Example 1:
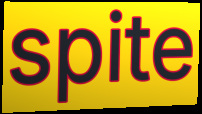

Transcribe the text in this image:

spite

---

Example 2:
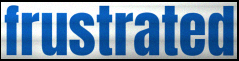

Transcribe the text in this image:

frustrated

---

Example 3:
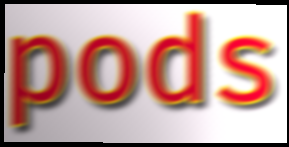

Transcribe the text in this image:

pods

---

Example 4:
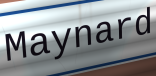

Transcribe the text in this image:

Maynard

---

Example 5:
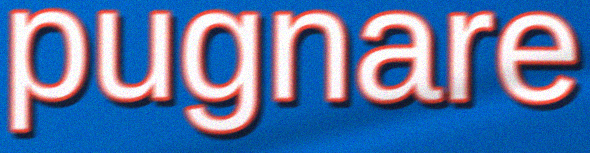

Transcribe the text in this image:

pugnare